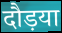
दौड़या